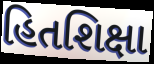
હિતશિક્ષા